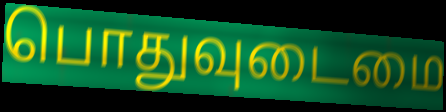
பொதுவுடைமை